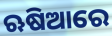
ଋଷିଆରେ